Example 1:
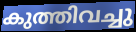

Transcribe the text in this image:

കുത്തിവച്ചു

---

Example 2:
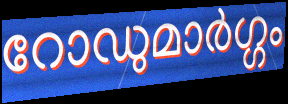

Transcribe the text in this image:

റോഡുമാർഗ്ഗം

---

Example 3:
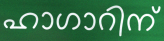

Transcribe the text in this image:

ഹാഗാറിന്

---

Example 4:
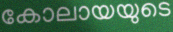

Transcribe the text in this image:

കോലായയുടെ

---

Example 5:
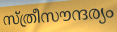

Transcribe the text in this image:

സ്ത്രീസൗന്ദര്യം